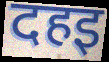
दहइ